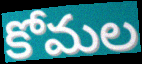
కోమల